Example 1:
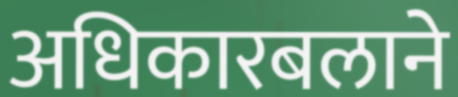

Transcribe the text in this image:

अधिकारबलाने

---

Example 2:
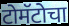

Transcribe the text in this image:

टोमॅटोचा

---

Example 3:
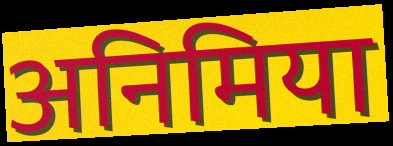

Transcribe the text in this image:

अनिमिया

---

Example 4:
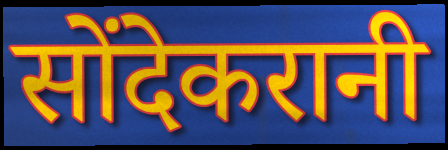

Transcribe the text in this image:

सोंदेकरानी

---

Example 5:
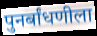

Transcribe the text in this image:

पुनर्बांधणीला